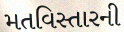
મતવિસ્તારની